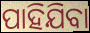
ପାହିଯିବା